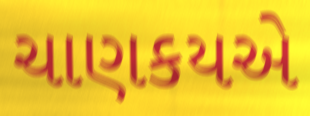
ચાણકયએ